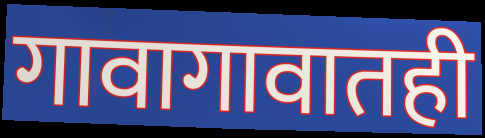
गावागावातही